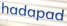
hadapad